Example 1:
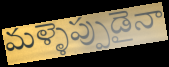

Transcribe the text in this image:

మళ్ళెప్పుడైనా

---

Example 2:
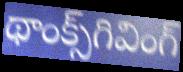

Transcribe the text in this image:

థాంక్స్‌గివింగ్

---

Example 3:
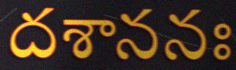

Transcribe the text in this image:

దశాననః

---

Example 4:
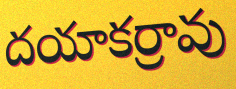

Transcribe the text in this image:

దయాకర్రావు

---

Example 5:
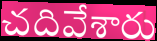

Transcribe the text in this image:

చదివేశారు